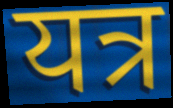
यत्र